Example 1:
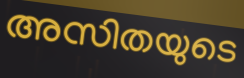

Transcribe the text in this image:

അസിതയുടെ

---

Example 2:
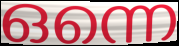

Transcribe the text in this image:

ഒന്നെ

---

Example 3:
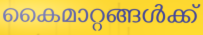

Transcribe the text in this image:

കൈമാറ്റങ്ങൾക്ക്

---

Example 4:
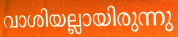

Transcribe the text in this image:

വാശിയല്ലായിരുന്നു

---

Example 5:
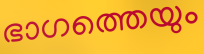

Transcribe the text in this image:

ഭാഗത്തെയും